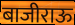
बाजीराऊ